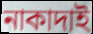
নাকাদাই